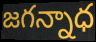
జగన్నాధ